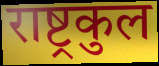
राष्ट्रकुल